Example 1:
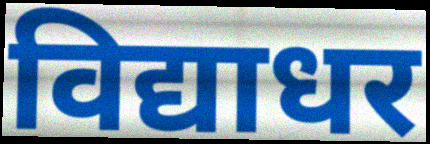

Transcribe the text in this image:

विद्याधर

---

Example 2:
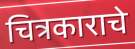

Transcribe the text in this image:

चित्रकाराचे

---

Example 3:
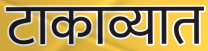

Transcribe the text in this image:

टाकाव्यात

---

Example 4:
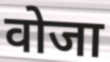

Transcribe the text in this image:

वोजा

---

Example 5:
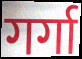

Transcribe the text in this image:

गर्गा